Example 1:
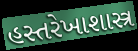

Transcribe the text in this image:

હસ્તરેખાશાસ્ત્ર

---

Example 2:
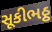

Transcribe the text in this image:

સૂકીભઠ્ઠ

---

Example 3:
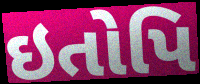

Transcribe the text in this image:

ઇતોપિ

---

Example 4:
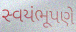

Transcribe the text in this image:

સ્વયંભૂપણે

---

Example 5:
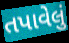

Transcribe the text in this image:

તપાવેલું